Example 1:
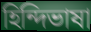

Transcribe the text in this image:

হিন্দিভাষা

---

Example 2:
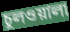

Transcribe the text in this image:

চুলওয়ালা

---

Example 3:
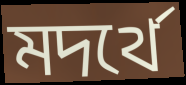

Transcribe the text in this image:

মদর্থে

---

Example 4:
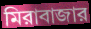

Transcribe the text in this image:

মিরাবাজার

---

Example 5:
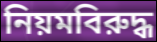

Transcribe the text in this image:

নিয়মবিরুদ্ধ